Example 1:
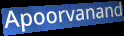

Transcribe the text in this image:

Apoorvanand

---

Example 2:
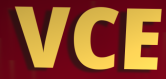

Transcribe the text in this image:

VCE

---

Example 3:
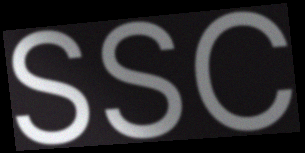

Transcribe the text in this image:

SSC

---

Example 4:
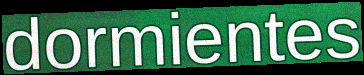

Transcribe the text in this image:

dormientes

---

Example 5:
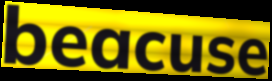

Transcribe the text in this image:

beacuse